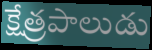
క్షేత్రపాలుడు